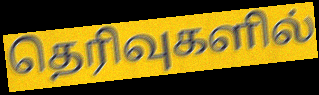
தெரிவுகளில்